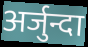
अर्जुन्दा